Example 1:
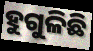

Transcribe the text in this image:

ହୁଗୁଳିଛି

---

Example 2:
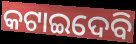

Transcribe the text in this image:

କଟାଇଦେବି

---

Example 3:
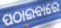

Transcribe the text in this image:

ପଠାଇବାରେ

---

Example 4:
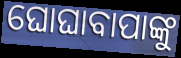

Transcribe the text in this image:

ଘୋଘାବାପାଙ୍କୁ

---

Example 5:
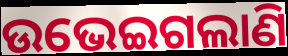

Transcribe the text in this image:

ଉଭେଇଗଲାଣି